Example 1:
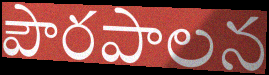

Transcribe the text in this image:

పౌరపాలన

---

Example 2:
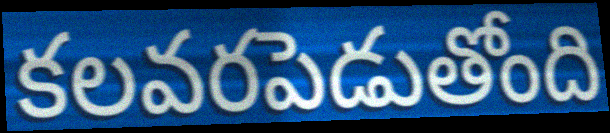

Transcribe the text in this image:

కలవరపెడుతోంది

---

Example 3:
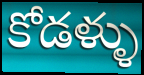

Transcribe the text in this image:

కోడళ్ళు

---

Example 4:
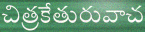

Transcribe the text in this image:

చిత్రకేతురువాచ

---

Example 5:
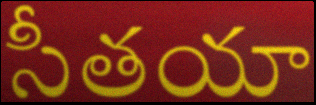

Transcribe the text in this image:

సీతయా